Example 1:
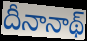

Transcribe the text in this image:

దీనానాథ్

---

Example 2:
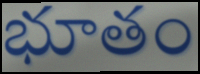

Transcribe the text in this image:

భూతం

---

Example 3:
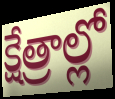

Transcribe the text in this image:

క్షేత్రాల్లో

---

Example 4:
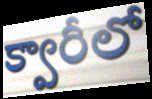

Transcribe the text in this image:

క్వారీలో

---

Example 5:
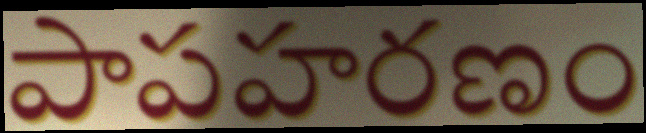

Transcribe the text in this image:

పాపహరణం